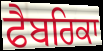
ਫੈਬਰਿਕਾ